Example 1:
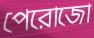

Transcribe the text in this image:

পেরোজো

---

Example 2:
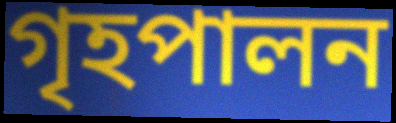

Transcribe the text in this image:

গৃহপালন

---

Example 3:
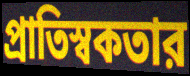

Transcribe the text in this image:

প্রাতিস্বকতার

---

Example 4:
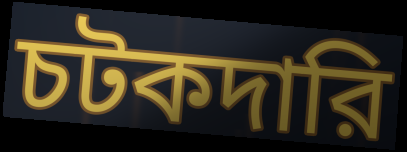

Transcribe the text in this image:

চটকদারি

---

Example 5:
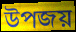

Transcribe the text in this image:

উপজয়